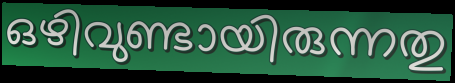
ഒഴിവുണ്ടായിരുന്നതു